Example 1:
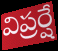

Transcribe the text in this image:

విప్రర్షే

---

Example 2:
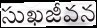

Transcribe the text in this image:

సుఖజీవన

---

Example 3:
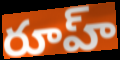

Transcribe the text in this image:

రూహ్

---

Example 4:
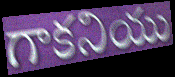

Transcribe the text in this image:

గాకనియు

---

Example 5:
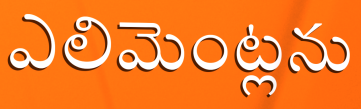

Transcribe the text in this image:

ఎలిమెంట్లను